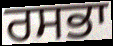
ਰਸਭਾ